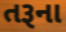
તરૂના